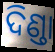
ଦିଣ୍ଡା